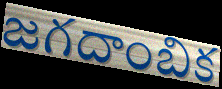
జగదాంబిక